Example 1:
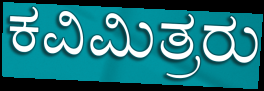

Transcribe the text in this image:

ಕವಿಮಿತ್ರರು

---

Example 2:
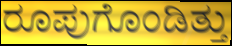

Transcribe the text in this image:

ರೂಪುಗೊಂಡಿತ್ತು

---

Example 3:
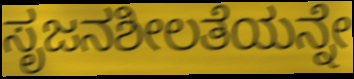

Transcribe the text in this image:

ಸೃಜನಶೀಲತೆಯನ್ನೇ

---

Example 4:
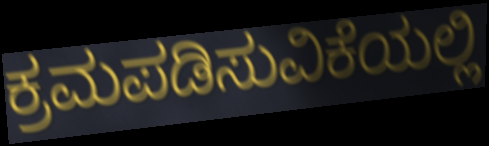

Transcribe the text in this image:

ಕ್ರಮಪಡಿಸುವಿಕೆಯಲ್ಲಿ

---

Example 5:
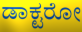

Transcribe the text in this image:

ಡಾಕ್ಟರೋ